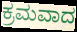
ಕ್ರಮವಾದ